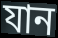
যান